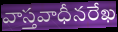
వాస్తవాధీనరేఖ